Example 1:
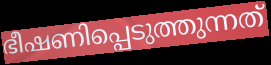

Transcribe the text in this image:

ഭീഷണിപ്പെടുത്തുന്നത്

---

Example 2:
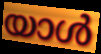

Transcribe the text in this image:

യാൾ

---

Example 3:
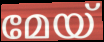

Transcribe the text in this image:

മേയ്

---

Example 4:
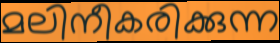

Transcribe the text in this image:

മലിനീകരിക്കുന്ന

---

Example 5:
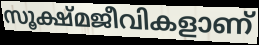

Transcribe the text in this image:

സൂക്ഷ്മജീവികളാണ്